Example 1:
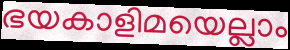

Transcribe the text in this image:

ഭയകാളിമയെല്ലാം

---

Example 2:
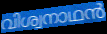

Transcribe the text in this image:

വിശ്വനാഥൻ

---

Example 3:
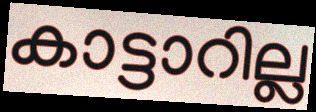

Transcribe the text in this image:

കാട്ടാറില്ല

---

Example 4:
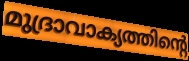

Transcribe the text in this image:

മുദ്രാവാക്യത്തിന്റെ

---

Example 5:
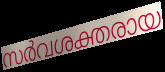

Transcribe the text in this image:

സർവശക്തരായ